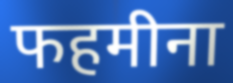
फहमीना